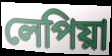
লেপিয়া